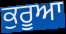
ਕੁਰੂਆ